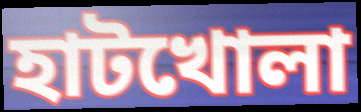
হাটখোলা